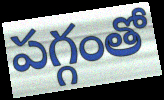
పగ్గంతో